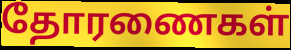
தோரணைகள்